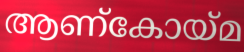
ആണ്കോയ്മ